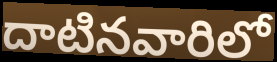
దాటినవారిలో